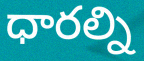
ధారల్ని